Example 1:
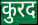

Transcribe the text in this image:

कुरद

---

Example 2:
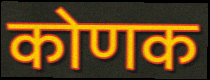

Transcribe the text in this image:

कोणक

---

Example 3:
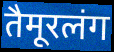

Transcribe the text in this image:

तैमूरलंग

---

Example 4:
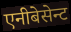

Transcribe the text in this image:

एनीबेसेन्ट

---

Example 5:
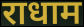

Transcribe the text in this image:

राधाम